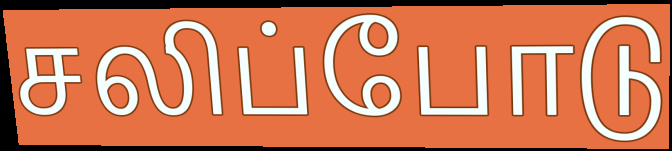
சலிப்போடு